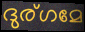
ദുര്ഗമേ